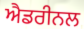
ਐਡਰੀਨਲ